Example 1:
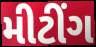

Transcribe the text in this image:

મીટીંગ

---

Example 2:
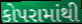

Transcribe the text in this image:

કોપરામાંથી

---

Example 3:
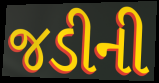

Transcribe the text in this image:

જડીની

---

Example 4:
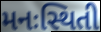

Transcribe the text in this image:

મનઃસ્થિતી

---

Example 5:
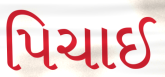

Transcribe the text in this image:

પિચાઈ